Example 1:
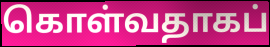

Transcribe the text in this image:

கொள்வதாகப்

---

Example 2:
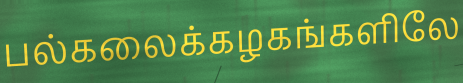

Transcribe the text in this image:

பல்கலைக்கழகங்களிலே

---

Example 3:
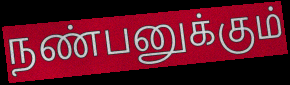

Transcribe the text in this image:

நண்பனுக்கும்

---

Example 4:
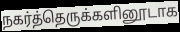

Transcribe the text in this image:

நகர்த்தெருக்களினூடாக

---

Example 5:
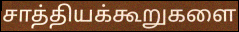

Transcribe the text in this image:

சாத்தியக்கூறுகளை